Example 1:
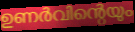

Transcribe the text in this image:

ഉണർവിന്റെയും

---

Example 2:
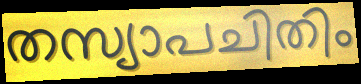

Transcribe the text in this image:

തസ്യാപചിതിം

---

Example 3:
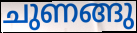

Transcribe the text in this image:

ചുണങ്ങു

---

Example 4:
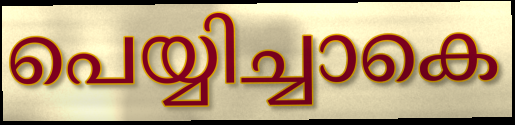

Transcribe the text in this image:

പെയ്യിച്ചാകെ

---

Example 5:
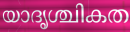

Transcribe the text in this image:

യാദൃശ്ചികത